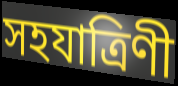
সহযাত্রিণী